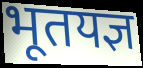
भूतयज्ञ